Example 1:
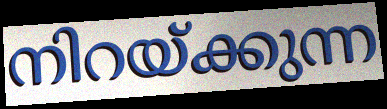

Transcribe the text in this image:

നിറയ്ക്കുന്ന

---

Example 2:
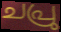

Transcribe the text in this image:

ചപ്രു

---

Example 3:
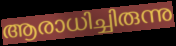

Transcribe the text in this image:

ആരാധിച്ചിരുന്നു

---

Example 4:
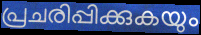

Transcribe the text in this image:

പ്രചരിപ്പിക്കുകയും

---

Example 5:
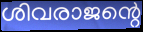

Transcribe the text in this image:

ശിവരാജന്റെ